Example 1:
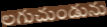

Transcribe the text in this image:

లగుచుండును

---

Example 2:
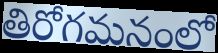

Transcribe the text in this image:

తిరోగమనంలో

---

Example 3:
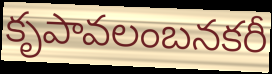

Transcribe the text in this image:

కృపావలంబనకరీ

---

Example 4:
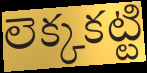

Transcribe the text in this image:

లెక్కకట్టి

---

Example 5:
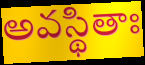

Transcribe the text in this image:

అవస్థితాః